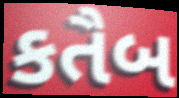
કતૈબ